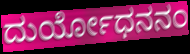
ದುರ್ಯೋಧನನಂ